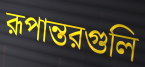
রূপান্তরগুলি